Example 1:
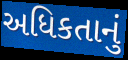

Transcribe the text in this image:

અધિકતાનું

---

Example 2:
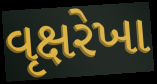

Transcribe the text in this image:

વૃક્ષરેખા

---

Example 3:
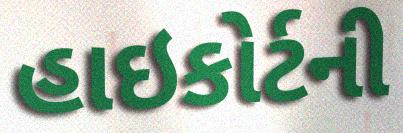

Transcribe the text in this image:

હાઇકોર્ટની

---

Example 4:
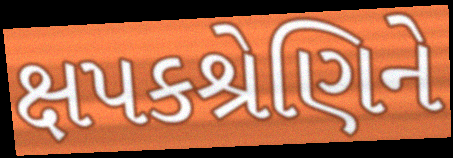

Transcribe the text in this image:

ક્ષપકશ્રેણિને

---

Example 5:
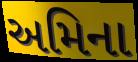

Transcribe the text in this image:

અમિના